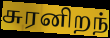
சுரனிறந்